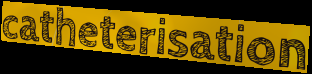
catheterisation